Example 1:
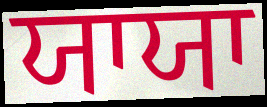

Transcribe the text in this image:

ਯਾਯਾ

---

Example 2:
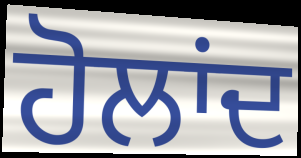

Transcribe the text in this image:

ਹੋਲਾਂਦ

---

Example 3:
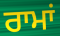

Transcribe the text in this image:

ਰਾਮਾਂ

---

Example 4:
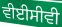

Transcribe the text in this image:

ਵੀਈਸੀਵੀ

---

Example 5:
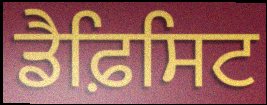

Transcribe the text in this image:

ਡੈਫ਼ਿਸਿਟ